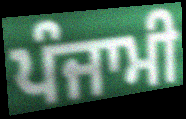
ਪੰਜਾਮੀ